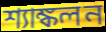
শ্যাঙ্কলন